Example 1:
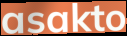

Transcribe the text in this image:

asakto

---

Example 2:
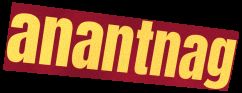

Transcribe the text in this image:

anantnag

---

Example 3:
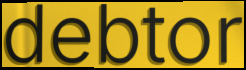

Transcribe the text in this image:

debtor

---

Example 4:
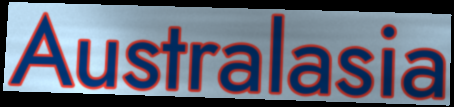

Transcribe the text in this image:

Australasia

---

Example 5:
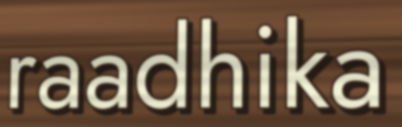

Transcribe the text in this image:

raadhika